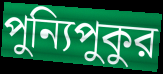
পুন্যিপুকুর